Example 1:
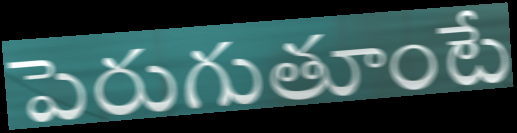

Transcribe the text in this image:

పెరుగుతూంటే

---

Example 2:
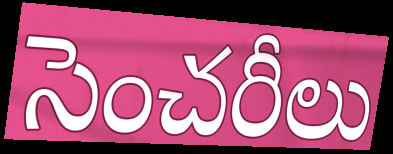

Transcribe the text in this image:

సెంచరీలు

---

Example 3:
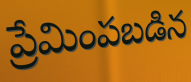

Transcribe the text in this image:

ప్రేమింపబడిన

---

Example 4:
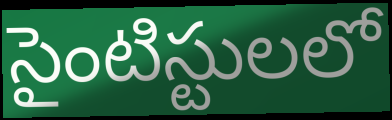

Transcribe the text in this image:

సైంటిస్టులలో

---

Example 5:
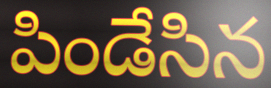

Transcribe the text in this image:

పిండేసిన